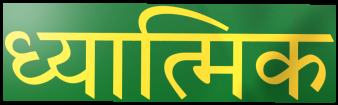
ध्यात्मिक